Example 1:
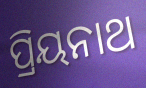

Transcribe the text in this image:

ପ୍ରିୟନାଥ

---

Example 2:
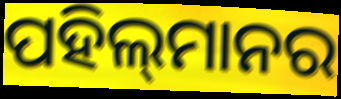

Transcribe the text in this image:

ପହିଲ୍‌ମାନର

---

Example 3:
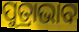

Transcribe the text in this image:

ପୁତ୍ରାଭାବ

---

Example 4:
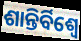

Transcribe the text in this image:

ଶାନ୍ତିର୍ବିଶ୍ୱେ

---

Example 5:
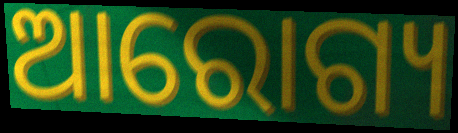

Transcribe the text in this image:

ଆରୋଗ୍ଯ